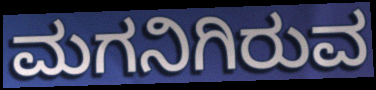
ಮಗನಿಗಿರುವ